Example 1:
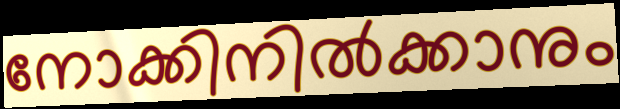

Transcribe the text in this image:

നോക്കിനിൽക്കാനും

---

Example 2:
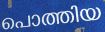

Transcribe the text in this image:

പൊത്തിയ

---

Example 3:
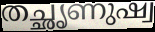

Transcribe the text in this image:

തച്ഛൃണുഷ്വ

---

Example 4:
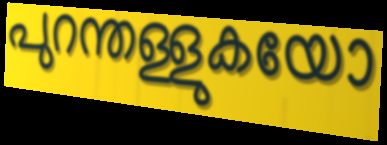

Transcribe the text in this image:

പുറന്തള്ളുകയോ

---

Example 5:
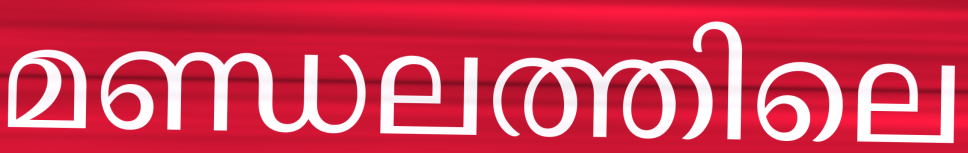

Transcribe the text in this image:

മണ്ഡലത്തിലെ